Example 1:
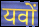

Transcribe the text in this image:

यवों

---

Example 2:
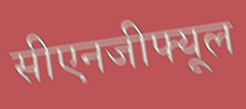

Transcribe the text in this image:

सीएनजीफ्यूल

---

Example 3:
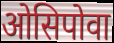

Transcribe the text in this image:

ओसिपोवा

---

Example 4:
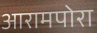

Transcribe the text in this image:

आरामपोरा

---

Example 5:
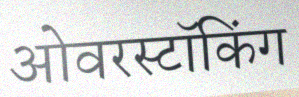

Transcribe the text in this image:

ओवरस्टॉकिंग